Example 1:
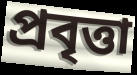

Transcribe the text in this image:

প্রবৃত্তা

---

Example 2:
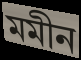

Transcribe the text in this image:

মমীন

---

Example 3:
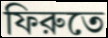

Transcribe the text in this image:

ফিরুতে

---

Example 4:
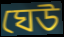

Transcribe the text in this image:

ঘেউ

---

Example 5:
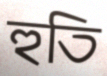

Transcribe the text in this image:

হুতি